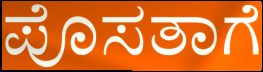
ಪೊಸತಾಗೆ